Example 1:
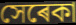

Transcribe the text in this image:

সেৰেকা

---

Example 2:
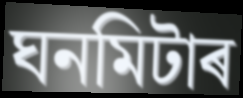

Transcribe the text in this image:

ঘনমিটাৰ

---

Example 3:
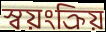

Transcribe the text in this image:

স্বয়ংক্ৰিয়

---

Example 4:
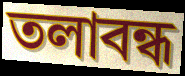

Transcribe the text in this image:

তলাবন্ধ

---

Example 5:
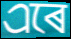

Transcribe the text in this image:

এৰে